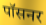
पॉसनर